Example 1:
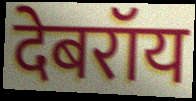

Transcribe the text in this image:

देबरॉय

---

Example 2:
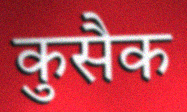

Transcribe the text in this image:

कुसैक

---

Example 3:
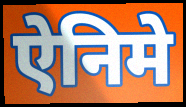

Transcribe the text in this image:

ऐनिमे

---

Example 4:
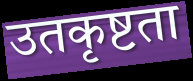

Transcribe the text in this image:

उतकृष्टता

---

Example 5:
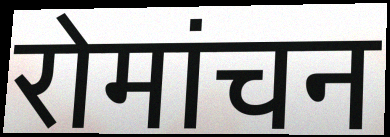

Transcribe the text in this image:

रोमांचन